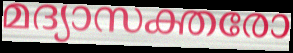
മദ്യാസക്തരോ